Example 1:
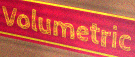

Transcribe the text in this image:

Volumetric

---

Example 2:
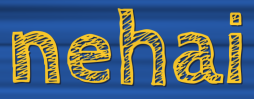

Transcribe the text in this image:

nehai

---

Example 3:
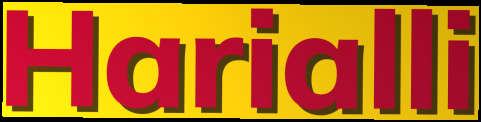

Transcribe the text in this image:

Harialli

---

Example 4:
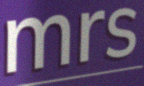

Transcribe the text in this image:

mrs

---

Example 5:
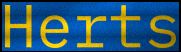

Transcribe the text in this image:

Herts